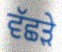
ਵੱਛੜੇ